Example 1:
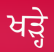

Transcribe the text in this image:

ਖਡ਼੍ਹੇ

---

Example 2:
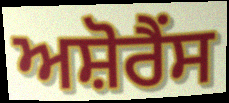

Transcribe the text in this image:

ਅਸ਼ੋਰੈਂਸ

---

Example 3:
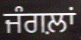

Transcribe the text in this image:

ਜੰਗਲ਼ਾਂ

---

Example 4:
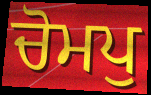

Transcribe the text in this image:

ਚੋਮਪੁ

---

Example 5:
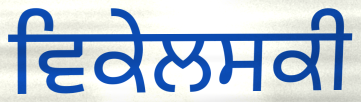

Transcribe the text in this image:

ਵਿਕੇਲਸਕੀ